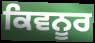
ਕਿਵਨੂਰ